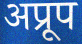
अप्रूप